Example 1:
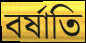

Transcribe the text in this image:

বর্ষাতি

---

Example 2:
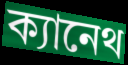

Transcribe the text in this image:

ক্যানেথ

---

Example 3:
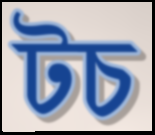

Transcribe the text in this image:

টচ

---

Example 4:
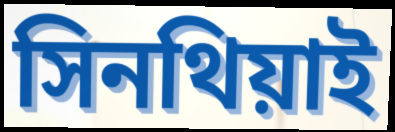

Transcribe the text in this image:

সিনথিয়াই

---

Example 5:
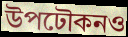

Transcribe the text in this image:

উপঢৌকনও